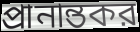
প্রানান্তকর